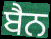
ਬੈਨ